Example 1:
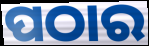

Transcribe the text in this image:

ପଠାର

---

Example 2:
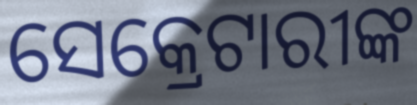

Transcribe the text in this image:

ସେକ୍ରେଟାରୀଙ୍କ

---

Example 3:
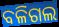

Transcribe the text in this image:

ବଳିଗଲ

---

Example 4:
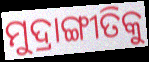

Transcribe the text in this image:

ମୁଦ୍ରାଙ୍ଗୀତିକୁ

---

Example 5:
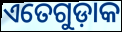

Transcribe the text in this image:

ଏତେଗୁଡ଼ାକ